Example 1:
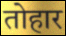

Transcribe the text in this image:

तोहार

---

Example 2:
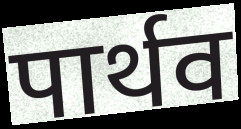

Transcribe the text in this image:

पार्थव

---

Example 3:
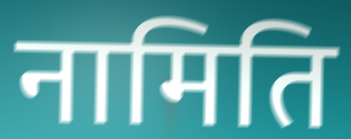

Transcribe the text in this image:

नामिति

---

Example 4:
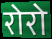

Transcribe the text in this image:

रोरो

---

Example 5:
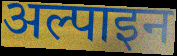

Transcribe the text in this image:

अल्पाइन